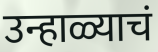
उन्हाळ्याचं